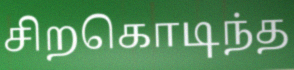
சிறகொடிந்த